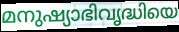
മനുഷ്യാഭിവൃദ്ധിയെ